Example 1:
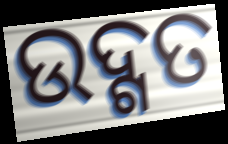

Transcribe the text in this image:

ଉଦ୍ଗତ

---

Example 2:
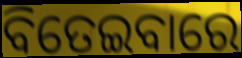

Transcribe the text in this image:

ବିତେଇବାରେ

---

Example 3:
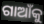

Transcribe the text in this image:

ଗାଆଁକୁ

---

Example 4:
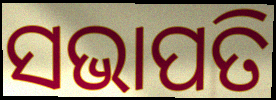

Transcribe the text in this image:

ସଭାପତି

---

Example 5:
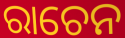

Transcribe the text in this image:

ରାଚେନ